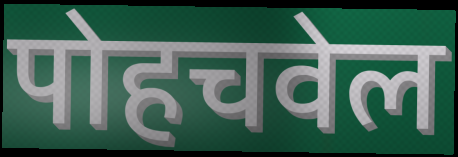
पोहचवेल